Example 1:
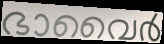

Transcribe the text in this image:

ഭാവൈർ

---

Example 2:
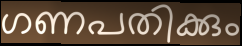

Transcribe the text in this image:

ഗണപതിക്കും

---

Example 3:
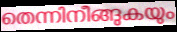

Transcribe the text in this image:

തെന്നിനീങ്ങുകയും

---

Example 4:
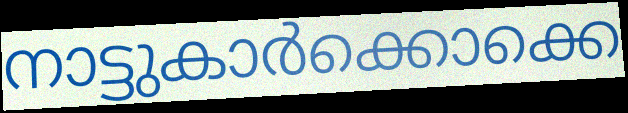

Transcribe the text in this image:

നാട്ടുകാർക്കൊക്കെ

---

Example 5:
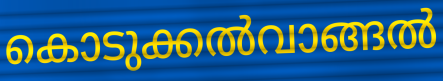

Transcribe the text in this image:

കൊടുക്കൽവാങ്ങൽ